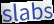
slabs